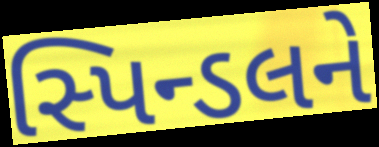
સ્પિન્ડલને